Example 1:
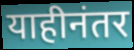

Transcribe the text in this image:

याहीनंतर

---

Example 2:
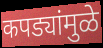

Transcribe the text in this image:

कपड्यांमुळे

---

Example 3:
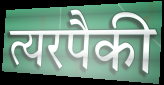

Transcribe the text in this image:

त्यरपैकी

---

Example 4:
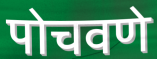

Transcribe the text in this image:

पोचवणे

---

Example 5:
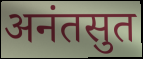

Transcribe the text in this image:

अनंतसुत